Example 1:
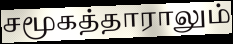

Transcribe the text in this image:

சமூகத்தாராலும்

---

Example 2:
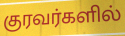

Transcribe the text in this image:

குரவர்களில்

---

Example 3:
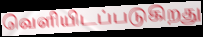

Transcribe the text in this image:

வெளியிடப்படுகிறது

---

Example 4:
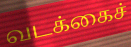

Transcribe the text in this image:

வடக்கைச்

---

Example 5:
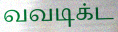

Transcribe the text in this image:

வவடிக்ட